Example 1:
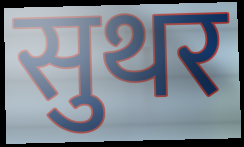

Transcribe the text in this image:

सुथर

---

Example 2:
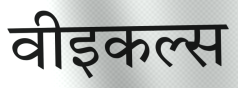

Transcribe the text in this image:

वीइकल्स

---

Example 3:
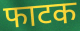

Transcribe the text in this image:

फाटक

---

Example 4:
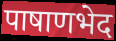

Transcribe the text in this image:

पाषाणभेद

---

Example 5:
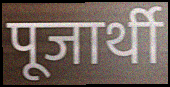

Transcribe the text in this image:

पूजार्थी